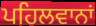
ਪਹਿਲਵਾਨਾਂ